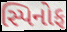
સ્પિનોફ